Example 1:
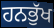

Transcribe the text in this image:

ਹਨਭੁੱਖ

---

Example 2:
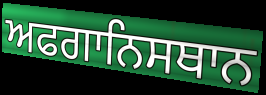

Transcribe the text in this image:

ਅਫਗਾਨਿਸਥਾਨ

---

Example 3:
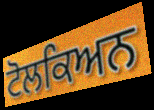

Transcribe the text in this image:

ਟੋਲਕਿਅਨ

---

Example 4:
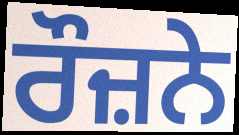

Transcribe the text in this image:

ਰੌਜ਼ਨੇ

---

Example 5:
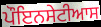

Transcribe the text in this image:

ਪੌਇਨਸੇਟੀਆਸ